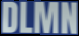
DLMN